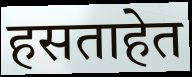
हसताहेत